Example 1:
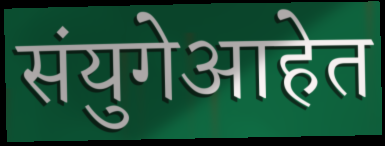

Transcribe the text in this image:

संयुगेआहेत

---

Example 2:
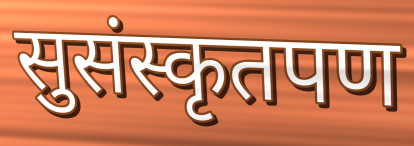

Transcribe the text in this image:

सुसंस्कृतपण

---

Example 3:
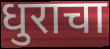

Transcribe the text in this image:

धुराचा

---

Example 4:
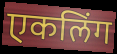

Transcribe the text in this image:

एकलिंग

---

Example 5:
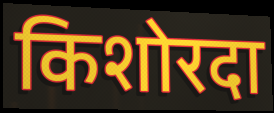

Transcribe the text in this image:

किशोरदा